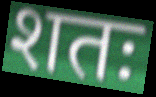
शतः